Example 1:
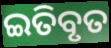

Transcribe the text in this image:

ଇତିବୃତ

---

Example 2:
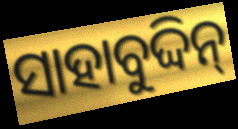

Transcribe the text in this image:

ସାହାବୁଦ୍ଦିନ୍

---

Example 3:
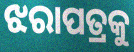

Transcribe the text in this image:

ଝରାପତ୍ରକୁ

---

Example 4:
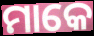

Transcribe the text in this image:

ମାକେ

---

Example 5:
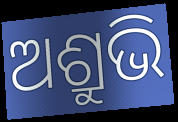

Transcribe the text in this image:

ଅଶ୍ରୁଭି